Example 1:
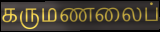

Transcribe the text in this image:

கருமணலைப்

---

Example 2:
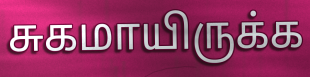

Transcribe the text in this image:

சுகமாயிருக்க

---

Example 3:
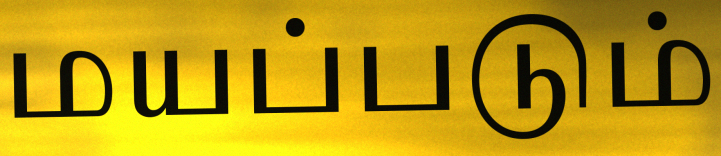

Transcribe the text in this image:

மயப்படும்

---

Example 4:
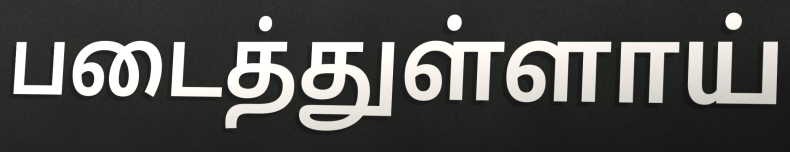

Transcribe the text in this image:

படைத்துள்ளாய்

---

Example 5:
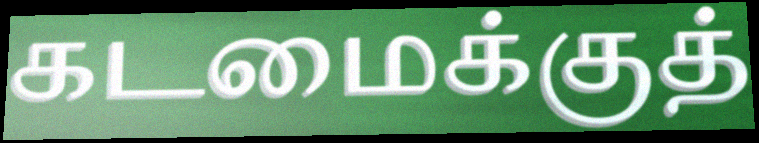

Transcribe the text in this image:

கடமைக்குத்